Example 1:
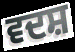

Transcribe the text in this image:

ਵਦਸ਼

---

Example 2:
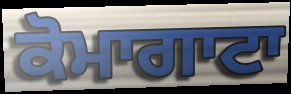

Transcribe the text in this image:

ਕੋਮਾਗਾਟਾ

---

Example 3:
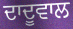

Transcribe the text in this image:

ਦਾਦੂਵਾਲ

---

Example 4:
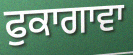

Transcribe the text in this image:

ਫੁਕਾਗਾਵਾ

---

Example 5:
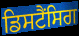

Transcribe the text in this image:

ਡਿਸਟੈਂਸਿਗ